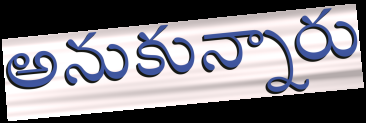
అనుకున్నారు